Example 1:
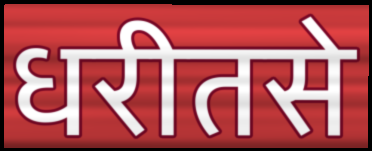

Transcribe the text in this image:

धरीतसे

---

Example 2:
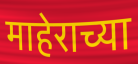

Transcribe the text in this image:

माहेराच्या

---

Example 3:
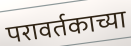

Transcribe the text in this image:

परावर्तकाच्या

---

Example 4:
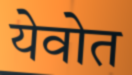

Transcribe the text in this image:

येवोत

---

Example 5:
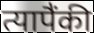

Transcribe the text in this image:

त्यापैंकी